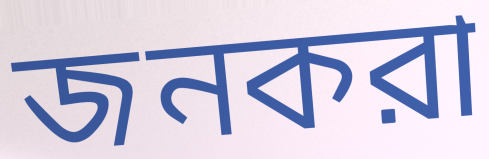
জনকরা